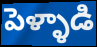
పెళ్ళాడి